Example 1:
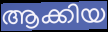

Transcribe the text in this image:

ആക്കിയ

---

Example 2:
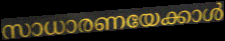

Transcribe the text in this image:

സാധാരണയേക്കാൾ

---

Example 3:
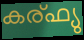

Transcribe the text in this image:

കര്ഫ്യു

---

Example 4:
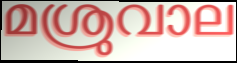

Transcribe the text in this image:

മശ്രുവാല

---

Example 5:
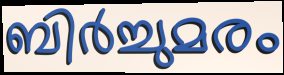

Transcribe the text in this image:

ബിർച്ചുമരം